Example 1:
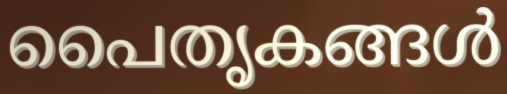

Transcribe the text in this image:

പൈതൃകങ്ങൾ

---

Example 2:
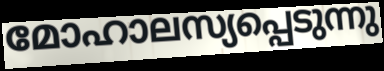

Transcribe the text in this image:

മോഹാലസ്യപ്പെടുന്നു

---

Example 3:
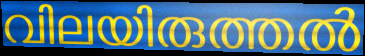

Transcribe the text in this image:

വിലയിരുത്തൽ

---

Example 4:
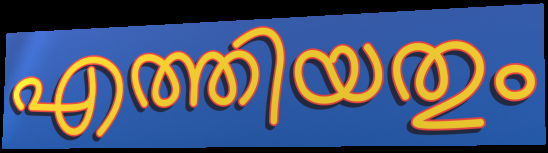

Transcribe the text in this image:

എത്തിയതും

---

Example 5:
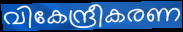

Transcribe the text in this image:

വികേന്ദ്രീകരണ